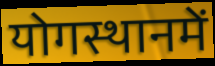
योगस्थानमें